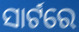
ସାର୍ଟରେ